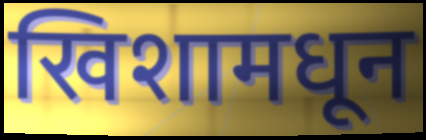
खिशामधून